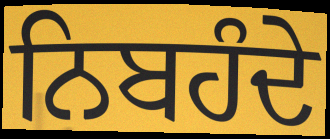
ਨਿਬਹੰਦੇ